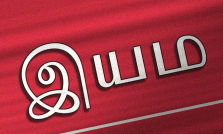
இயம